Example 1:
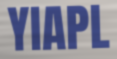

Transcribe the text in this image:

YIAPL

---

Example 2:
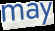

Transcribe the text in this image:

may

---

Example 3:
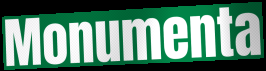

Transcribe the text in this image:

Monumenta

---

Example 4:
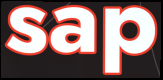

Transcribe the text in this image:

sap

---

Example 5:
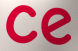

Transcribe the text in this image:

ce